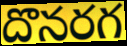
దొనరగ